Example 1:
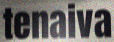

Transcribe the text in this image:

tenaiva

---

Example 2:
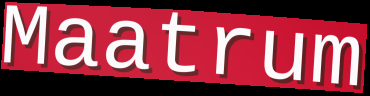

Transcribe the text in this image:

Maatrum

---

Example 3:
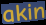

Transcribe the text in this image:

akin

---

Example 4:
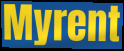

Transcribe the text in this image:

Myrent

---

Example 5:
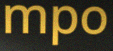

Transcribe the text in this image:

mpo